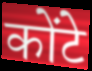
कोंटे